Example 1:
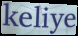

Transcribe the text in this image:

keliye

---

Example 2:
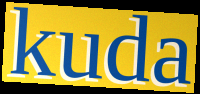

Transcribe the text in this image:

kuda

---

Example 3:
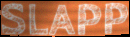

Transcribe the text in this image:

SLAPP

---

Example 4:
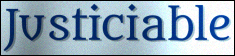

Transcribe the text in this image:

Justiciable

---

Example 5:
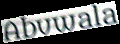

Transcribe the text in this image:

Abuwala